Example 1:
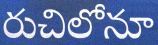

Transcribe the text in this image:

రుచిలోనూ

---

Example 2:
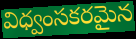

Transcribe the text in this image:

విధ్వంసకరమైన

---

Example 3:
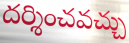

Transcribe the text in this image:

దర్శించవచ్చు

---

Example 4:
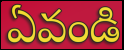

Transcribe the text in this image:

ఏవండి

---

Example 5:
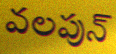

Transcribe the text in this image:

వలపున్